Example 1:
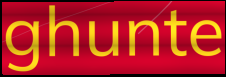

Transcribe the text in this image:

ghunte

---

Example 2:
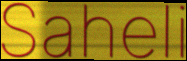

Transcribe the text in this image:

Saheli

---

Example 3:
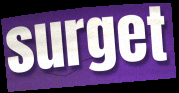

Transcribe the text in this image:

surget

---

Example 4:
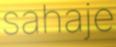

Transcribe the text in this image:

sahaje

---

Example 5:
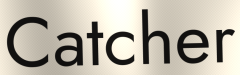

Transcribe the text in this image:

Catcher